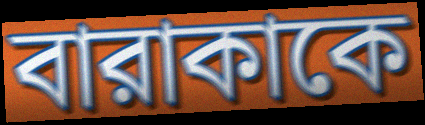
বারাকাকে